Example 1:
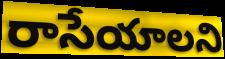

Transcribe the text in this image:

రాసేయాలని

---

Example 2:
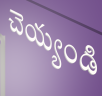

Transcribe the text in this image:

చెయ్యండి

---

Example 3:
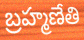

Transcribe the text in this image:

బ్రహ్మణేతి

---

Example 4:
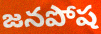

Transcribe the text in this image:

జనపోష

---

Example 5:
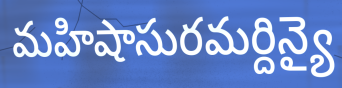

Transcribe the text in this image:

మహిషాసురమర్దిన్యై